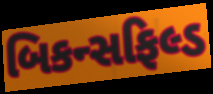
બિકન્સફિલ્ડ